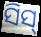
ସିସ୍